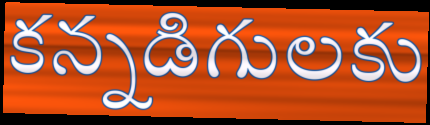
కన్నడిగులకు